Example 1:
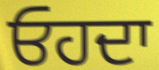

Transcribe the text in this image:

ਓਹਦਾ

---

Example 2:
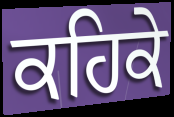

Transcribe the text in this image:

ਕਹਿਕੇ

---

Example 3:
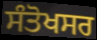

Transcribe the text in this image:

ਸੰਤੋਖਸਰ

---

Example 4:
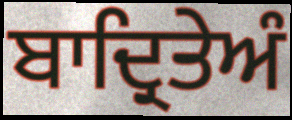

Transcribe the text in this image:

ਬਾਦ੍ਰਿਤੇਅੰ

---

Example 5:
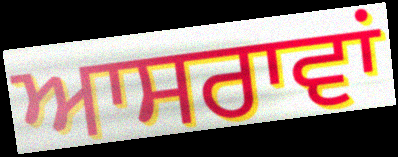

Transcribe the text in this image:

ਆਸਰਾਵਾਂ